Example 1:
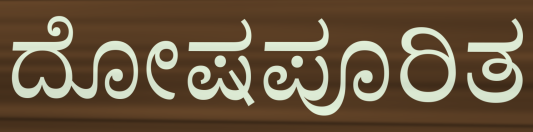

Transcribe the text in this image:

ದೋಷಪೂರಿತ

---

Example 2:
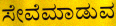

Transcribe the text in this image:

ಸೇವೆಮಾಡುವ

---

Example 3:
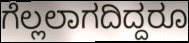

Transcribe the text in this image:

ಗೆಲ್ಲಲಾಗದಿದ್ದರೂ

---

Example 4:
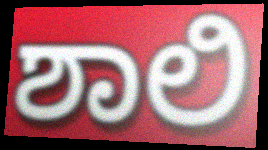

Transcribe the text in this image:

ಶಾಲಿ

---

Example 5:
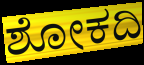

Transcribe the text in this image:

ಶೋಕದಿ